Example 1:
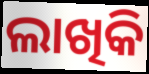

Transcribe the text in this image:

ଲାଖିକି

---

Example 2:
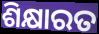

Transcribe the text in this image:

ଶିକ୍ଷାରତ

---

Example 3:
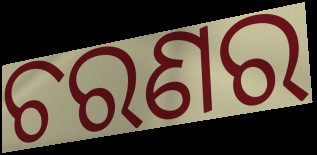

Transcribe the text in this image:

ଚରଣର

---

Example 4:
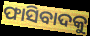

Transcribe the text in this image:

ଫାସିବାଦକୁ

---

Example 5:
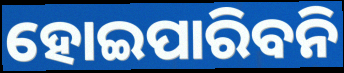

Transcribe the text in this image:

ହୋଇପାରିବନି